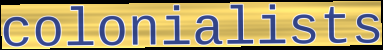
colonialists